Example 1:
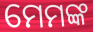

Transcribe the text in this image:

ମେମଙ୍କ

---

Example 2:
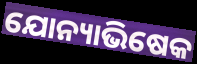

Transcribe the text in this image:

ଯୋନ୍ୟାଭିଷେକ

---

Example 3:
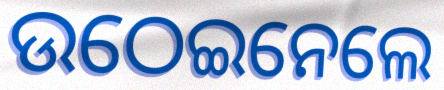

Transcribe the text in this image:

ଉଠେଇନେଲେ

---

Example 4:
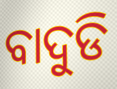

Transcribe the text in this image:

ବାଦୁଡି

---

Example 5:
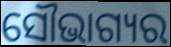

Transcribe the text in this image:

ସୌଭାଗ୍ୟର